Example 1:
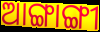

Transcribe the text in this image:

ଆଙ୍ଗାଙ୍ଗୀ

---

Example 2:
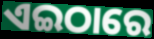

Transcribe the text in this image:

ଏଇଠାରେ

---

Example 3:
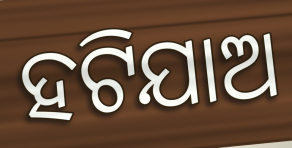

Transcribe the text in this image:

ହଟିଯାଅ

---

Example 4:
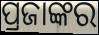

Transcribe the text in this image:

ପ୍ରଜାଙ୍କର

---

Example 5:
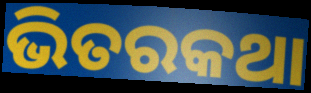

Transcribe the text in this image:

ଭିତରକଥା